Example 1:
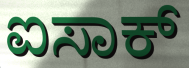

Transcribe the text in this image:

ಐಸಾಕ್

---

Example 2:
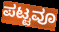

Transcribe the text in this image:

ಪಟ್ಟವೂ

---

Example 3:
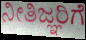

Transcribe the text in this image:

ನೀತಿಜ್ಞರಿಗೆ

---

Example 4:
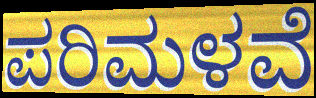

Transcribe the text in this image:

ಪರಿಮಳವೆ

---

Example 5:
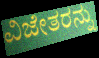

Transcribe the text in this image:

ವಿಜೇತರನ್ನು